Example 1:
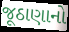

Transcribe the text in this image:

જૂઠાણાનો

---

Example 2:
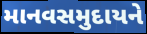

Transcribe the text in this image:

માનવસમુદાયને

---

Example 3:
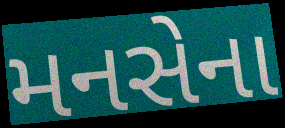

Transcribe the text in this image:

મનસેના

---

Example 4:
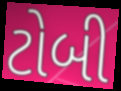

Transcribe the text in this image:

ટોબી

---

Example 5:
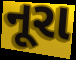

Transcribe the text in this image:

નૂરા